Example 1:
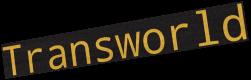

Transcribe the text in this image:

Transworld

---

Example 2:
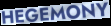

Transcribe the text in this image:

HEGEMONY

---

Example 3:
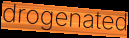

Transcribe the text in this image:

drogenated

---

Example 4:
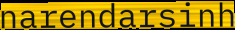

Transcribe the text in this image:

narendarsinh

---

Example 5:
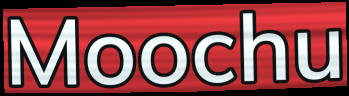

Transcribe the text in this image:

Moochu